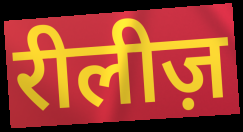
रीलीज़